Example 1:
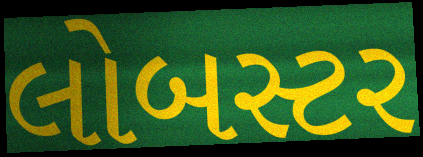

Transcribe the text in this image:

લોબસ્ટર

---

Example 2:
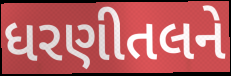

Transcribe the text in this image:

ધરણીતલને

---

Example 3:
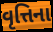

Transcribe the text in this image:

વૃત્તિના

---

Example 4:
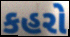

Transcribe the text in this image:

કહરો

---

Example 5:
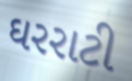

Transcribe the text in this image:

ઘરરાટી